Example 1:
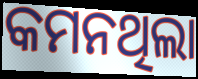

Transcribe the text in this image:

କମନଥିଲା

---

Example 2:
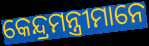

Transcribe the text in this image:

କେନ୍ଦ୍ରମନ୍ତ୍ରୀମାନେ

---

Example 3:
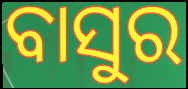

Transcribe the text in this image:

ବାସୁର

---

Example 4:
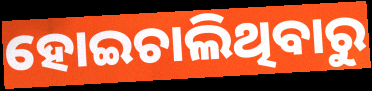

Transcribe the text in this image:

ହୋଇଚାଲିଥିବାରୁ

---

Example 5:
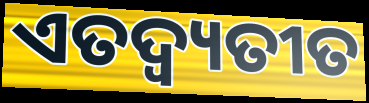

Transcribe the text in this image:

ଏତଦ୍ବ୍ୟତୀତ